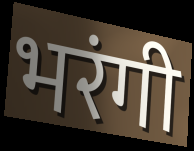
भरंगी